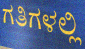
ಗತಿಗಳಲ್ಲಿ